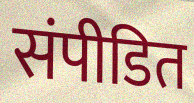
संपीडित